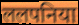
ललपनिया